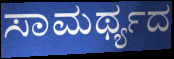
ಸಾಮರ್ಥ್ಯದ